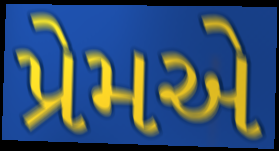
પ્રેમએ